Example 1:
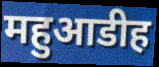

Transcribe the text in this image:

महुआडीह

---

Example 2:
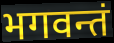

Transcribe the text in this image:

भगवन्तं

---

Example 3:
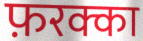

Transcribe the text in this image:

फ़रक्का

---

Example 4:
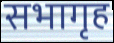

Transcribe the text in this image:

सभागृह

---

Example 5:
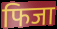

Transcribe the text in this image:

फिजा